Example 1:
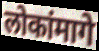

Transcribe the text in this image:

लोकांमागे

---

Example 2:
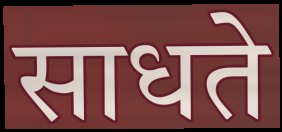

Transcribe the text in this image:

साधते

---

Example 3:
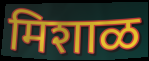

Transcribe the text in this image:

मिशाळ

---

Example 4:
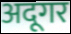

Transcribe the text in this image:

अदूगर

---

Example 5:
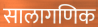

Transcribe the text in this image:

सालागणिक